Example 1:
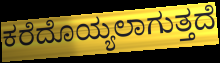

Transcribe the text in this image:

ಕರೆದೊಯ್ಯಲಾಗುತ್ತದೆ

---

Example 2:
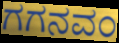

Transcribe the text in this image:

ಗಗನವಂ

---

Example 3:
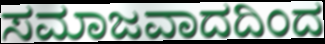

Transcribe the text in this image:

ಸಮಾಜವಾದದಿಂದ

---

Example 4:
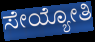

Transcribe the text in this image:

ಸೇಯ್ಯೋತಿ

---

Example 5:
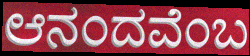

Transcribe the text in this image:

ಆನಂದವೆಂಬ